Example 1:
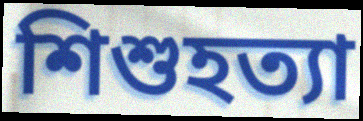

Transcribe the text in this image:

শিশুহত্যা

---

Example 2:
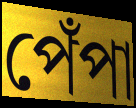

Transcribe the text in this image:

পেঁপা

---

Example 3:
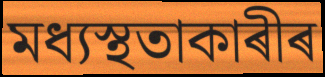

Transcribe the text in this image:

মধ্যস্থতাকাৰীৰ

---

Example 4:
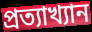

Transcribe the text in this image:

প্ৰত্যাখ্যান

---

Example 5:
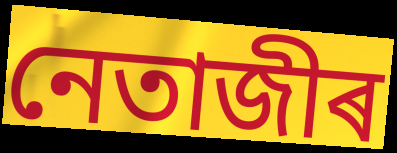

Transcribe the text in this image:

নেতাজীৰ